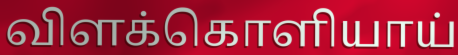
விளக்கொளியாய்